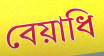
বেয়াধি